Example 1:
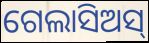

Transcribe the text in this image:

ଗେଲାସିଅସ୍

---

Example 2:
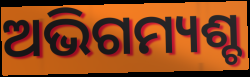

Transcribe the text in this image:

ଅଭିଗମ୍ୟଶ୍ଚ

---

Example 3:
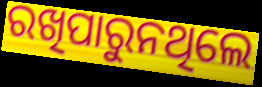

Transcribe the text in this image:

ରଖିପାରୁନଥିଲେ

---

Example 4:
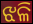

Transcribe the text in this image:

ଝଳି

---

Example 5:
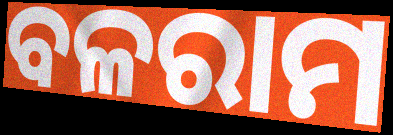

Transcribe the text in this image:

ବଳରାମ